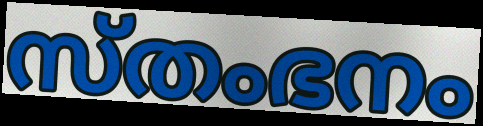
സ്തംഭനം